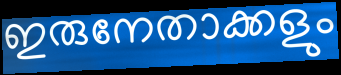
ഇരുനേതാക്കളും